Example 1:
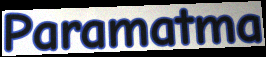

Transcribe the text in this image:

Paramatma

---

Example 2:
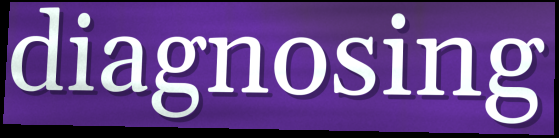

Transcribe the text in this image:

diagnosing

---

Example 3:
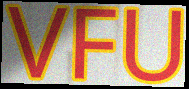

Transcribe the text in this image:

VFU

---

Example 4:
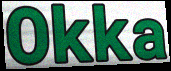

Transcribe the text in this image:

Okka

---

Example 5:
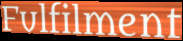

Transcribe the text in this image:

Fulfilment